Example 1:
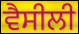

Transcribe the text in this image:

ਵੈਸੀਲੀ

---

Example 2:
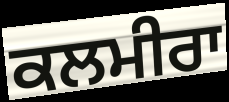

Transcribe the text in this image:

ਕਲਮੀਰਾ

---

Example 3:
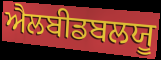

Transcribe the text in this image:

ਐਲਬੀਡਬਲਯੂ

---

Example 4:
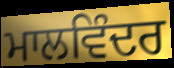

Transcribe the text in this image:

ਮਾਲਵਿੰਦਰ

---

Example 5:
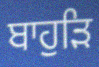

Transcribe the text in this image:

ਬਾਹੁੜਿ